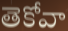
తెకోవా